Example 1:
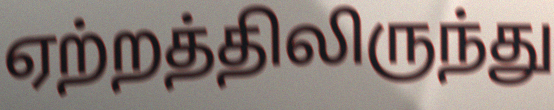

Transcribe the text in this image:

ஏற்றத்திலிருந்து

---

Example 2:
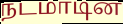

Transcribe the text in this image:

நடமாடின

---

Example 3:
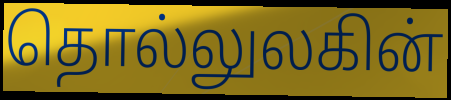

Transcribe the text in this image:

தொல்லுலகின்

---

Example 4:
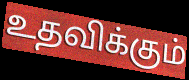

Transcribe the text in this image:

உதவிக்கும்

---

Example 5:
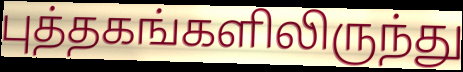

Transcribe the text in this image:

புத்தகங்களிலிருந்து